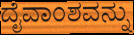
ದೈವಾಂಶವನ್ನು